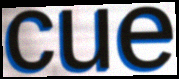
cue